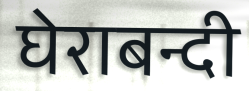
घेराबन्दी